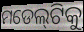
ମଡେଲ୍‌ଟିକୁ